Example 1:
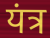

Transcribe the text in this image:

यंत्र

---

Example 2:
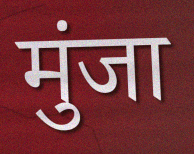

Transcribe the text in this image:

मुंजा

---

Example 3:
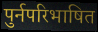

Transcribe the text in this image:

पुर्नपरिभाषित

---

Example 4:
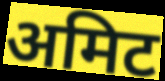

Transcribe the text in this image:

अमिट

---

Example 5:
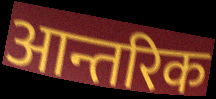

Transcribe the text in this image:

आन्तरिक